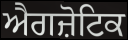
ਐਗਜ਼ੋਟਿਕ